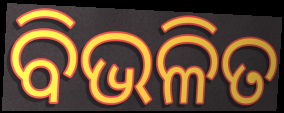
ବିଭଳିତ